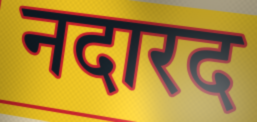
नदारद